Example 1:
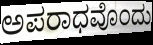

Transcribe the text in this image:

ಅಪರಾಧವೊಂದು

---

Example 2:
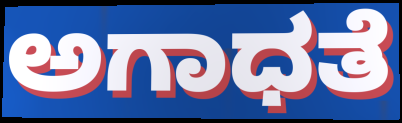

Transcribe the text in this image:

ಅಗಾಧತೆ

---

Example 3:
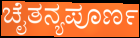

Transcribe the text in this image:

ಚೈತನ್ಯಪೂರ್ಣ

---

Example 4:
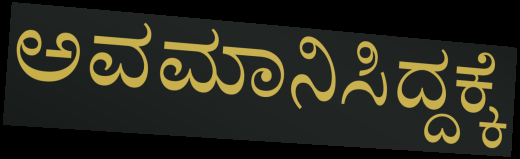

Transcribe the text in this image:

ಅವಮಾನಿಸಿದ್ದಕ್ಕೆ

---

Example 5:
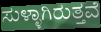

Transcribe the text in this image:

ಸುಳ್ಳಾಗಿರುತ್ತವೆ